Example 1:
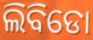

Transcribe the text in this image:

ଲିବିଡୋ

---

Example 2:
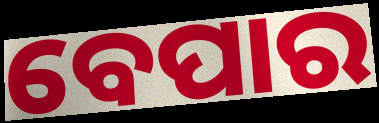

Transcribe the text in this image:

ବେପାର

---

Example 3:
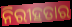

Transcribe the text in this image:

ନିରୀହତାର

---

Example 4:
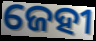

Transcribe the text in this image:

ଜେହୀ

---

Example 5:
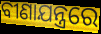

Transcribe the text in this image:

ବୀଣାଯନ୍ତ୍ରରେ